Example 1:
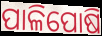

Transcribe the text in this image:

ପାଳିପୋଷି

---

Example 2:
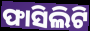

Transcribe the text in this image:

ଫାସିଲିଟି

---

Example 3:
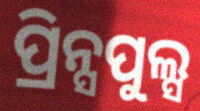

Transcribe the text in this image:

ପ୍ରିନ୍ସପୁଲ୍ସ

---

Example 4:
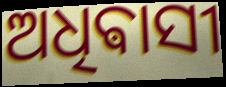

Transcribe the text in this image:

ଅଧିଵାସୀ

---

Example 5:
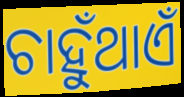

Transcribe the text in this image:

ଚାହୁଁଥାଏଁ